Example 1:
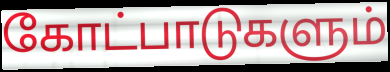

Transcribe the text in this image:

கோட்பாடுகளும்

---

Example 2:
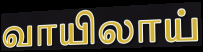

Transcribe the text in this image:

வாயிலாய்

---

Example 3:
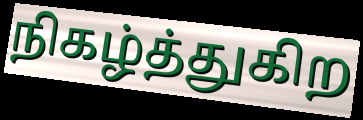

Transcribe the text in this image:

நிகழ்த்துகிற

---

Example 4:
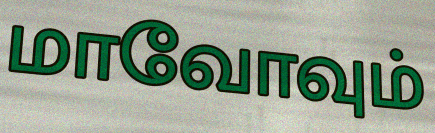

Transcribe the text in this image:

மாவோவும்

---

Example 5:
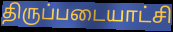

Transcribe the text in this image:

திருப்படையாட்சி